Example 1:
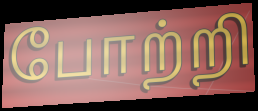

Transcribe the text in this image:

போற்றி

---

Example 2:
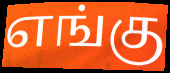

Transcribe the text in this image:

எங்கு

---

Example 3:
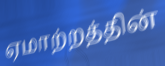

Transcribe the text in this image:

ஏமாற்றத்தின்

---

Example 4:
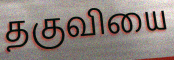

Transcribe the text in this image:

தகுவியை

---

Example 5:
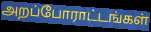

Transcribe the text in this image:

அறப்போராட்டங்கள்